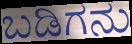
ಬಡಿಗನು